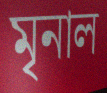
মৃনাল